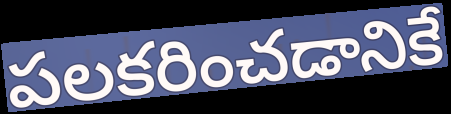
పలకరించడానికే